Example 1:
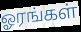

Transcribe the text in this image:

ஓரங்கள்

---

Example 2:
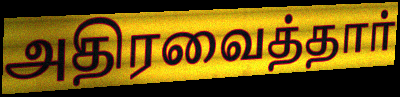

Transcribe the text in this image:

அதிரவைத்தார்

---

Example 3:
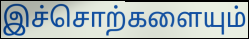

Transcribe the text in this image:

இச்சொற்களையும்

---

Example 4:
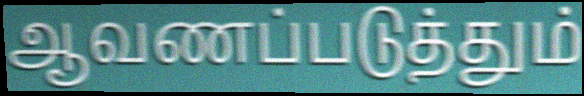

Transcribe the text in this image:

ஆவணப்படுத்தும்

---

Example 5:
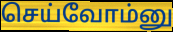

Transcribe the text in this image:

செய்வோம்னு